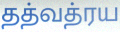
தத்வத்ரய